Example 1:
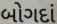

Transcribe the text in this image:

બોગદાં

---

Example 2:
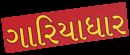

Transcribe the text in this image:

ગારિયાધાર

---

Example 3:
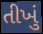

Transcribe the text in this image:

તીખું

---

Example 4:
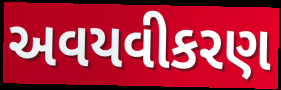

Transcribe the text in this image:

અવયવીકરણ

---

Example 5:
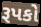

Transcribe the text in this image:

રૂપકો